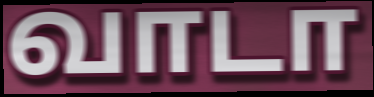
வாடா